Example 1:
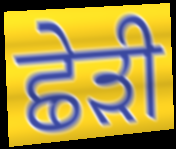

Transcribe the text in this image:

ਛੇੜੀ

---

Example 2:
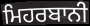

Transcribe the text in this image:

ਮਿਹਰਬਾਨੀ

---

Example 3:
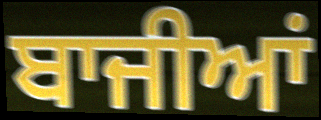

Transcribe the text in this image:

ਬਾਜੀਆਂ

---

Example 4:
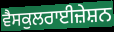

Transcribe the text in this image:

ਵੈਸਕੁਲਰਾਈਜ਼ੇਸ਼ਨ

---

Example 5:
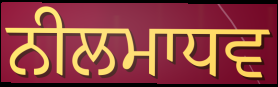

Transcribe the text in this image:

ਨੀਲਮਾਧਵ